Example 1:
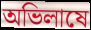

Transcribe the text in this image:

অভিলাষে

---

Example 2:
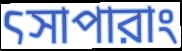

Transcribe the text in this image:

ৎসাপারাং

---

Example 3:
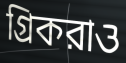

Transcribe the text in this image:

গ্রিকরাও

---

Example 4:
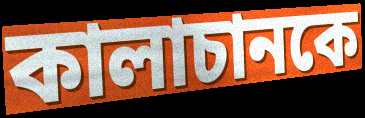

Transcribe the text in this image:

কালাচানকে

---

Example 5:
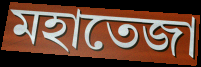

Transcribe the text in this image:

মহাতেজা